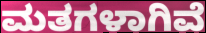
ಮತಗಳಾಗಿವೆ